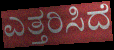
ಎತ್ತರಿಸಿದೆ